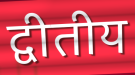
द्वीतीय